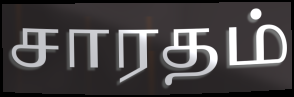
சாரதம்